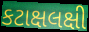
કટાક્ષલક્ષી